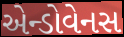
એન્ડોવેનસ